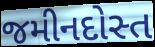
જમીનદોસ્ત